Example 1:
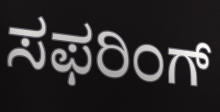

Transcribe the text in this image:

ಸಫರಿಂಗ್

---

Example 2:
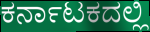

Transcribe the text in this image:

ಕರ್ನಾಟಕದಲ್ಲಿ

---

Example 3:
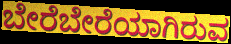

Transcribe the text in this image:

ಬೇರೆಬೇರೆಯಾಗಿರುವ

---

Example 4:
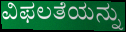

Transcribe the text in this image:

ವಿಫಲತೆಯನ್ನು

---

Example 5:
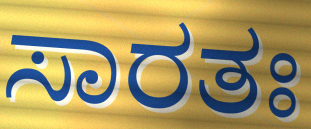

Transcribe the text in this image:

ಸಾರತಃ